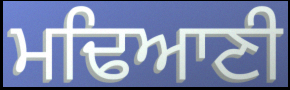
ਮਢਿਆਣੀ